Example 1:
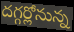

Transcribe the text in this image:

దగ్గర్లోనున్న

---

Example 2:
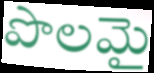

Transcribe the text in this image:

పొలమై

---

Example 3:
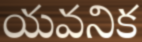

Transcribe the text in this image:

యవనిక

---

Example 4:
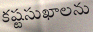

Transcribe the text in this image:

కష్టసుఖాలను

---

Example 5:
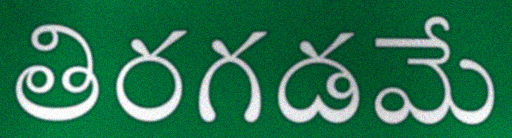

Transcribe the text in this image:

తిరగడమే